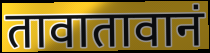
तावातावानं